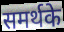
समर्थके